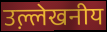
उल्ल़ेखनीय